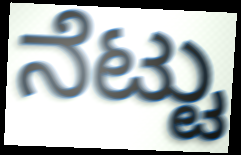
ನೆಟ್ಟು